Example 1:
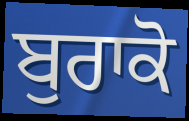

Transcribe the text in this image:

ਬੁਰਾਕੋ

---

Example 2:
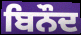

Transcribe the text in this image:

ਬਿਨੌਦ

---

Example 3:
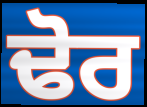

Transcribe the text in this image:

ਢੋਰ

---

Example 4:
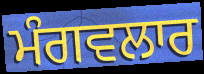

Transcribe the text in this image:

ਮੰਗਵਲਾਰ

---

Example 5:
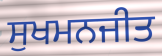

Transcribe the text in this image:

ਸੁਖਮਨਜੀਤ